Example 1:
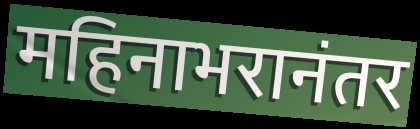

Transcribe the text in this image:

महिनाभरानंतर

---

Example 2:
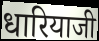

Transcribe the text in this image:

धारियाजी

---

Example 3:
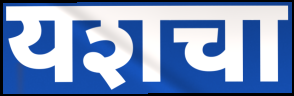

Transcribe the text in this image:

यशचा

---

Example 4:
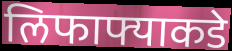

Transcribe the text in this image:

लिफाफ्याकडे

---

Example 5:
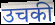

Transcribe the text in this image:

उचकी